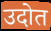
उदोत